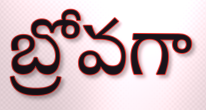
బ్రోవగా